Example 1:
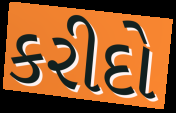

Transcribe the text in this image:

કરીદો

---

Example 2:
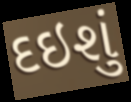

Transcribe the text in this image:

દઇશું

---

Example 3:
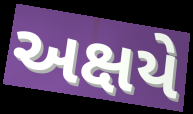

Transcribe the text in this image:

અક્ષયે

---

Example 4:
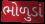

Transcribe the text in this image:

ભોળુડાં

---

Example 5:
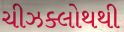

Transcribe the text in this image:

ચીઝક્લોથથી